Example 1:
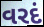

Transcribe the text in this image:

વરદં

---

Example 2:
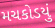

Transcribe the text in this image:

મચકોડયું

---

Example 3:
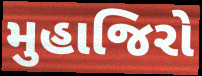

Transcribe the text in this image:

મુહાજિરો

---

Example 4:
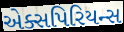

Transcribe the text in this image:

એક્સપિરિયન્સ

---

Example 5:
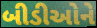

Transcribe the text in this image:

બીડીઓને